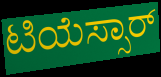
ಟಿಯೆಸ್ಸಾರ್